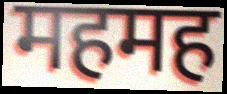
महमह